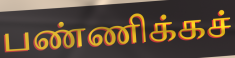
பண்ணிக்கச்